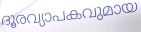
ദൂരവ്യാപകവുമായ